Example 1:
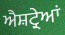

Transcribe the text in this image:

ਐਸ਼ਟ੍ਰੇਆਂ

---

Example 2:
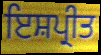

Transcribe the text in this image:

ਇਸ਼ਪ੍ਰੀਤ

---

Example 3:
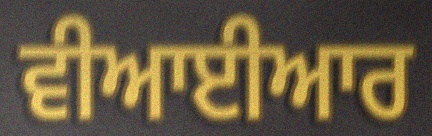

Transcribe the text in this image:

ਵੀਆਈਆਰ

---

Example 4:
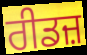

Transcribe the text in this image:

ਰੀਡਜ਼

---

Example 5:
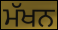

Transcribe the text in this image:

ਮੱਖਨ